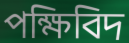
পক্ষিবিদ